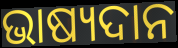
ଭାଷ୍ୟଦାନ